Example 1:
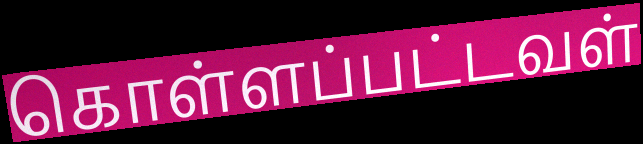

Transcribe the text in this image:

கொள்ளப்பட்டவள்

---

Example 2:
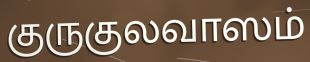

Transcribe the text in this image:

குருகுலவாஸம்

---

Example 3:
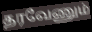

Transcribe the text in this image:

தரவேணும்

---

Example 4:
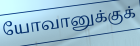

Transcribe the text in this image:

யோவானுக்குக்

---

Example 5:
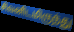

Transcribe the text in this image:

சிவனிடமிருந்து